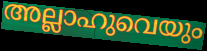
അല്ലാഹുവെയും